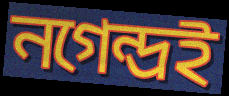
নগেন্দ্রই